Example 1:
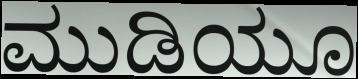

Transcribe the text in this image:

ಮುಡಿಯೂ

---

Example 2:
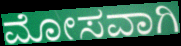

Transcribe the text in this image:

ಮೋಸವಾಗಿ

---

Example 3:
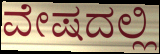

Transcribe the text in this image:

ವೇಷದಲ್ಲಿ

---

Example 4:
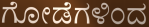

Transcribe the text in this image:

ಗೋಡೆಗಳಿಂದ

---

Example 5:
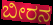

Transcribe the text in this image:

ಬೀರನ